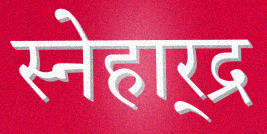
स्नेहार्द्र